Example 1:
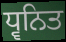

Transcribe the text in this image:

ਧ੍ਵਨਿਤ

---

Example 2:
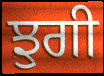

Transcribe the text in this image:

ਝੁਗੀ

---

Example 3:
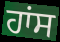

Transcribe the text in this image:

ਹਾਂਸ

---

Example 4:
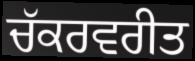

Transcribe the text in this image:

ਚੱਕਰਵਰੀਤ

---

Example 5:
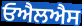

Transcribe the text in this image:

ਓਐਲਐਸ